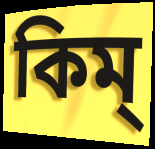
কিম্